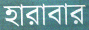
হারাবার